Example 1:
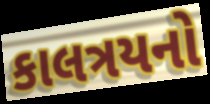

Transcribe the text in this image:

કાલત્રયનો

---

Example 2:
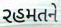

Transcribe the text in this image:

રહમતને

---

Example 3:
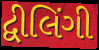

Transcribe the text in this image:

દ્વીલિંગી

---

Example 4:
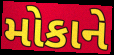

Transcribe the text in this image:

મોકાને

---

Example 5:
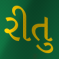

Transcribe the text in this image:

રીતુ